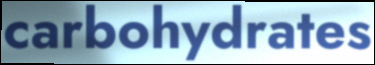
carbohydrates